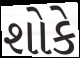
શોકે